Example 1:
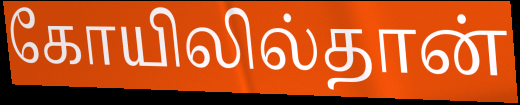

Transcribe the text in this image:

கோயிலில்தான்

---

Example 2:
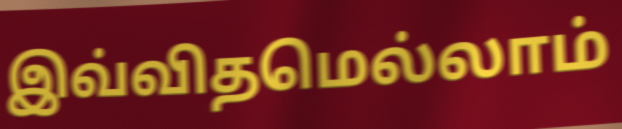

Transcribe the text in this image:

இவ்விதமெல்லாம்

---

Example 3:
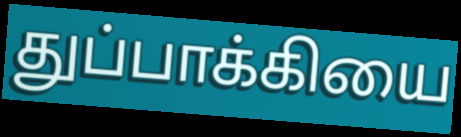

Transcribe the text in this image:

துப்பாக்கியை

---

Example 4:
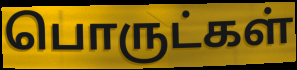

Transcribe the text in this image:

பொருட்கள்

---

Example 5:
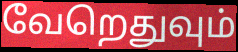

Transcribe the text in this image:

வேறெதுவும்